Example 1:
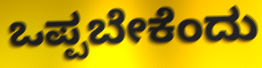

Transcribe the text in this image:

ಒಪ್ಪಬೇಕೆಂದು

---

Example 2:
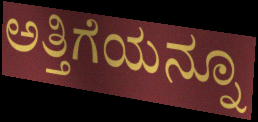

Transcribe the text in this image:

ಅತ್ತಿಗೆಯನ್ನೂ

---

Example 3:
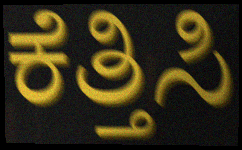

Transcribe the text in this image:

ಕೆತ್ತಿಸಿ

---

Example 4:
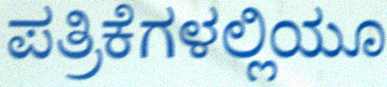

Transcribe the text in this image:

ಪತ್ರಿಕೆಗಳಲ್ಲಿಯೂ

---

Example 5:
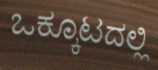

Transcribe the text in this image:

ಒಕ್ಕೂಟದಲ್ಲಿ